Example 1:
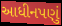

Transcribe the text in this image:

આધીનપણું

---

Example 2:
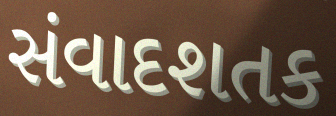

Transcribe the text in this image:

સંવાદશતક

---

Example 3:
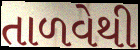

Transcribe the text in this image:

તાળવેથી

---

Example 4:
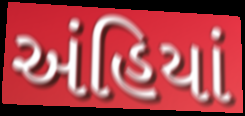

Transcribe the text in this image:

અંહિયાં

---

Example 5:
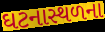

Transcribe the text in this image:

ઘટનાસ્થળના